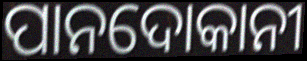
ପାନଦୋକାନୀ